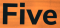
Five